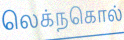
லெக்நகொல்